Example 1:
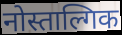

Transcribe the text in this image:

नोस्ताल्गिक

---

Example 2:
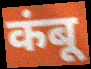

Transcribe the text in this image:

कंबू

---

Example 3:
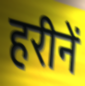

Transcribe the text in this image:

हरीनें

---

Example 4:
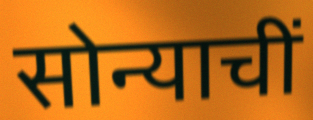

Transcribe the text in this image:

सोन्याचीं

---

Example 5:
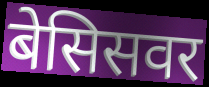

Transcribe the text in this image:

बेसिसवर